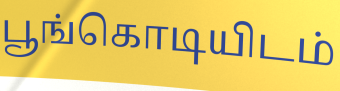
பூங்கொடியிடம்